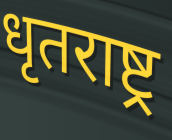
धृतराष्ट्र